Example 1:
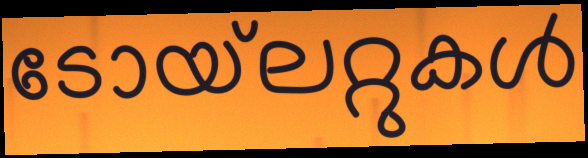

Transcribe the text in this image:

ടോയ്‌ലറ്റുകൾ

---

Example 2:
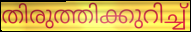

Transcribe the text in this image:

തിരുത്തിക്കുറിച്ച്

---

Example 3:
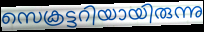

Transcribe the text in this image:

സെക്രട്ടറിയായിരുന്നു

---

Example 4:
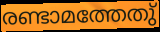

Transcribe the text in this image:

രണ്ടാമത്തേതു്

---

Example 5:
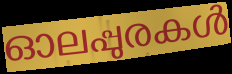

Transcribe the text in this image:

ഓലപ്പുരകൾ